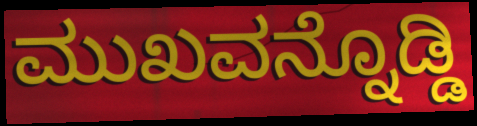
ಮುಖವನ್ನೊಡ್ಡಿ